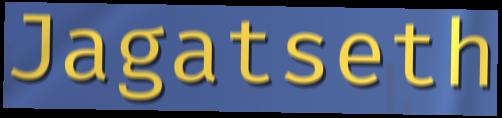
Jagatseth